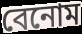
বেনোম